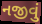
નજીવું